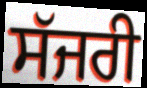
ਸੱਜਰੀ